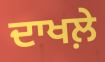
ਦਾਖਲ਼ੇ